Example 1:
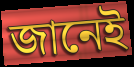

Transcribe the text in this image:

জানেই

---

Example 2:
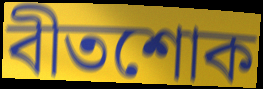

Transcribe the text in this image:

বীতশোক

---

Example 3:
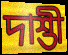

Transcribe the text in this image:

দাশ্তী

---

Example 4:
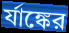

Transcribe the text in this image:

র্যাঙ্কের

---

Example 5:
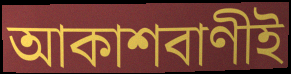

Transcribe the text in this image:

আকাশবাণীই